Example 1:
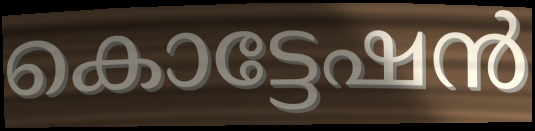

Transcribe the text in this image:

കൊട്ടേഷൻ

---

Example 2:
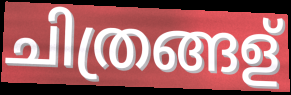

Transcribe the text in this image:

ചിത്രങ്ങള്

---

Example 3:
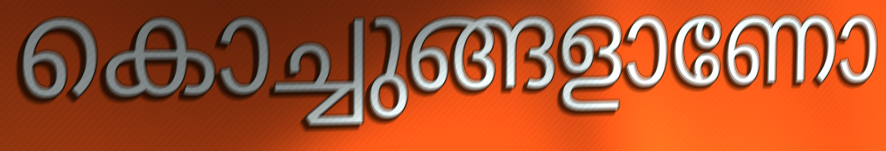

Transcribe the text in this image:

കൊച്ചുങ്ങളാണോ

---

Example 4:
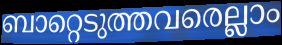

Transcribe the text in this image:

ബാറ്റെടുത്തവരെല്ലാം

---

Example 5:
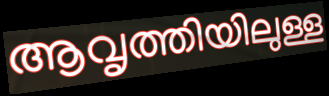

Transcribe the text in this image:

ആവൃത്തിയിലുള്ള